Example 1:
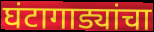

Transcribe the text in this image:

घंटागाड्यांचा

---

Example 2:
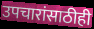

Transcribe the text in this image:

उपचारांसाठीही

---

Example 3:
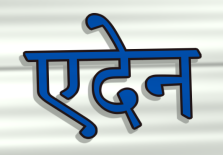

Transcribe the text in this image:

एदेन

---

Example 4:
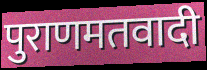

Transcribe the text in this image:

पुराणमतवादी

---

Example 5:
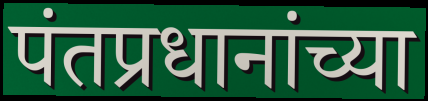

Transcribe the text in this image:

पंतप्रधानांच्या